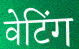
वेटिंग